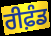
ਰੀਫ਼ੰਡ